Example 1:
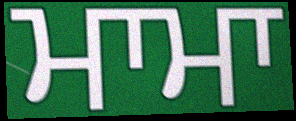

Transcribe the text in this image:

ਮਾਮਾ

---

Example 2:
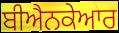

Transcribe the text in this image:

ਬੀਐਨਕੇਆਰ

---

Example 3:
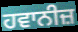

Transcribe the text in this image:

ਹਵਾਨੀਜ਼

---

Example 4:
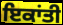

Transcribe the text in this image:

ਇਕਾਂਤੀ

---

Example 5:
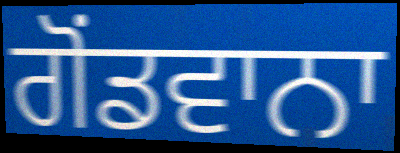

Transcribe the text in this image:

ਗੋਂਡਵਾਨਾ